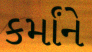
કર્માંને